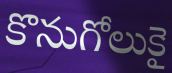
కొనుగోలుకై